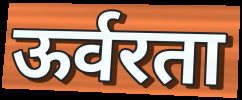
ऊर्वरता